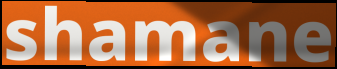
shamane